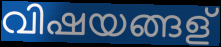
വിഷയങ്ങള്